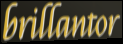
brillantor